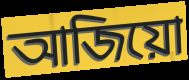
আজিয়ো